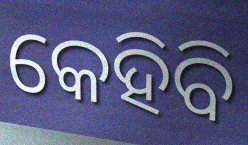
କେହିବି